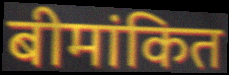
बीमांकित